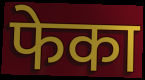
फेका